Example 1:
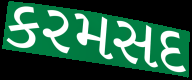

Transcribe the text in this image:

કરમસદ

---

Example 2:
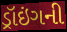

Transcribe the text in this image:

ડ્રૉઇંગની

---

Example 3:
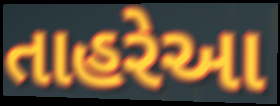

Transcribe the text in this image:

તાહરેઆ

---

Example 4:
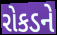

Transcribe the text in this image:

રોકડને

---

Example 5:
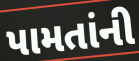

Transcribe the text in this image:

પામતાંની